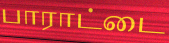
பாராட்டை